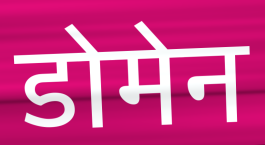
डोमेन